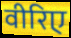
वीरिए